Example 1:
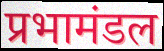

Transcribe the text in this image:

प्रभामंडल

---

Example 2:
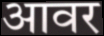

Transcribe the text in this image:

आवर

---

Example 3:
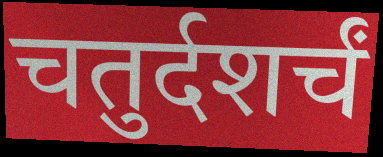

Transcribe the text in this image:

चतुर्दशर्चं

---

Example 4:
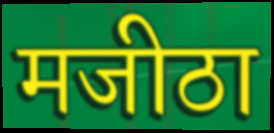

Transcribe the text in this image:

मजीठा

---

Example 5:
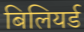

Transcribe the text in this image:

बिलियर्ड